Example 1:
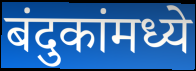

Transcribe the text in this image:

बंदुकांमध्ये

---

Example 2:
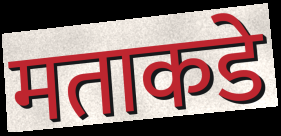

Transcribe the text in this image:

मताकडे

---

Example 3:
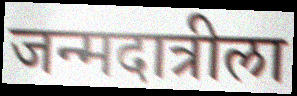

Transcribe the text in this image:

जन्मदात्रीला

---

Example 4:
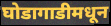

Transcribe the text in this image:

घोडागाडीमधून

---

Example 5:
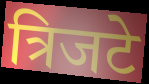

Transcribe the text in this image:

त्रिजटे